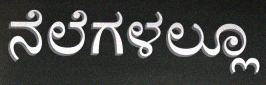
ನೆಲೆಗಳಲ್ಲೂ